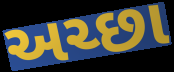
અચ્છા